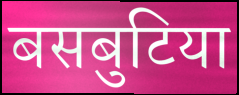
बसबुटिया